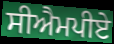
ਸੀਐਮਪੀਏ